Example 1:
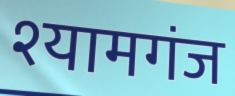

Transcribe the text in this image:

श्यामगंज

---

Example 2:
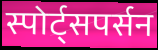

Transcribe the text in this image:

स्पोर्ट्सपर्सन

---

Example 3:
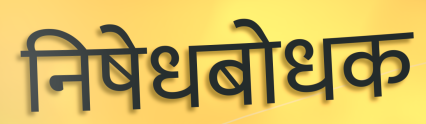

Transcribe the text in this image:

निषेधबोधक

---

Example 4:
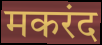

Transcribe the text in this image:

मकरंद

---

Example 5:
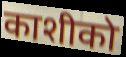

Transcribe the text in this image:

काशीको